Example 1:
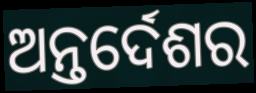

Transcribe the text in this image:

ଅନ୍ତର୍ଦେଶର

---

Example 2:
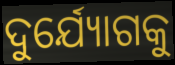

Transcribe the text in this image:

ଦୁର୍ଯ୍ୟୋଗକୁ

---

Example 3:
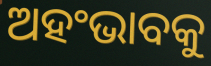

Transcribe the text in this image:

ଅହଂଭାବକୁ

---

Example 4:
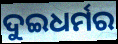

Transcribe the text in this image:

ଦୁଇଧର୍ମର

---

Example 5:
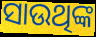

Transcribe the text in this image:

ସାଉଥିଙ୍କ